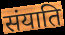
संयाति